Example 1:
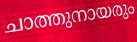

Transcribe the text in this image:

ചാത്തുനായരും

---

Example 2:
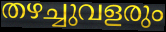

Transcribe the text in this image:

തഴച്ചുവളരും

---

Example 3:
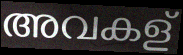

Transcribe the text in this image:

അവകള്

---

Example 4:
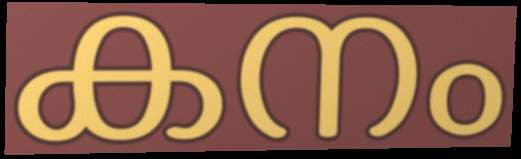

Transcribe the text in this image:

കനം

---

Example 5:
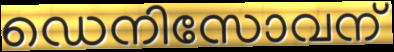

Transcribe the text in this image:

ഡെനിസോവന്